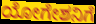
ಯೋಗೇಶನಿಗೆ